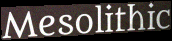
Mesolithic